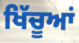
ਖਿੱਚੂਆਂ